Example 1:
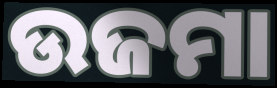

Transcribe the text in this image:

ଉଜମା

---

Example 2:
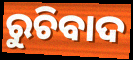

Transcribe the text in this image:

ରୁଚିବାଦ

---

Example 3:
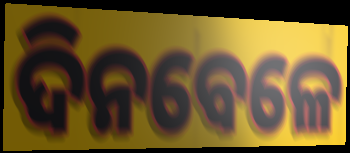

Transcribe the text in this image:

ଦିନବେଳେ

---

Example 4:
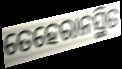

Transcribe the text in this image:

ତେହେରାନସ୍ଥିତ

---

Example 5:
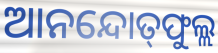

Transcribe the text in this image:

ଆନନ୍ଦୋତ୍‍ଫୁଲ୍ଲ